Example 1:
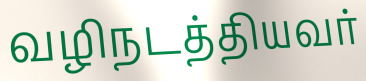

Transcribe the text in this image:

வழிநடத்தியவர்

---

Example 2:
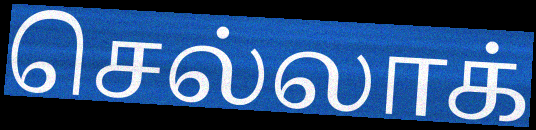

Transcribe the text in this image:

செல்லாக்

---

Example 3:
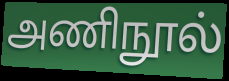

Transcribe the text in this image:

அணிநூல்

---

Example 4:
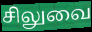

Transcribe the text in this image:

சிலுவை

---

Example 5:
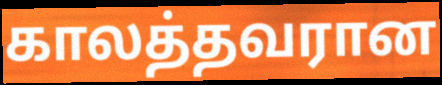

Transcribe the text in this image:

காலத்தவரான